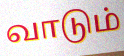
வாடும்